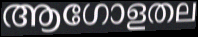
ആഗോളതല